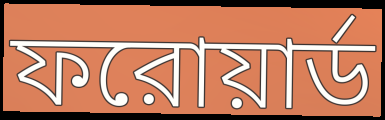
ফরোয়ার্ড